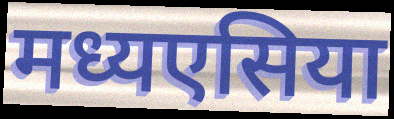
मध्यएसिया